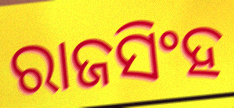
ରାଜସିଂହ